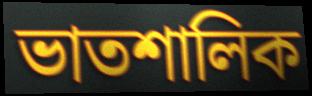
ভাতশালিক